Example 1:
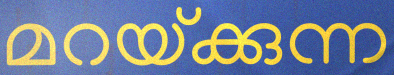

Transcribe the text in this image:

മറയ്‌ക്കുന്ന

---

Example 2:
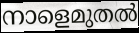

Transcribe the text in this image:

നാളെമുതൽ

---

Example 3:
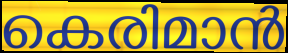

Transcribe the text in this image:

കെരിമാൻ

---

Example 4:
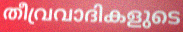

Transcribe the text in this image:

തീവ്രവാദികളുടെ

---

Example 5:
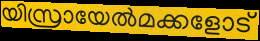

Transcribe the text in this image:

യിസ്രായേൽമക്കളോട്